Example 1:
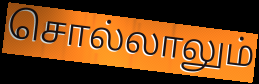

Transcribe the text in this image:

சொல்லாலும்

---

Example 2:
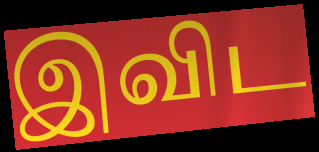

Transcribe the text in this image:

இவிட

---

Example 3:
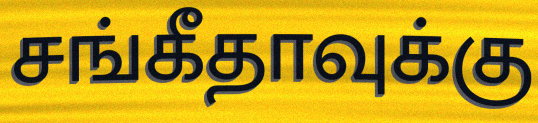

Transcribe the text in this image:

சங்கீதாவுக்கு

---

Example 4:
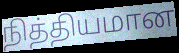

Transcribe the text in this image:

நித்தியமான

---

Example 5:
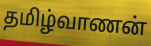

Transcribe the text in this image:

தமிழ்வாணன்